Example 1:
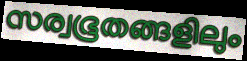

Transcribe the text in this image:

സര്വഭൂതങ്ങളിലും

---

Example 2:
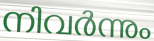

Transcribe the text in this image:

നിവർന്നും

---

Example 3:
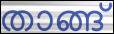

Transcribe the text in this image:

താങ്ങ്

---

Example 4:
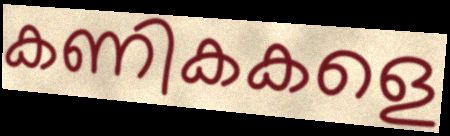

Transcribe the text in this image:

കണികകളെ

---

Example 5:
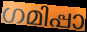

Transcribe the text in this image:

ഗമിപ്പാ